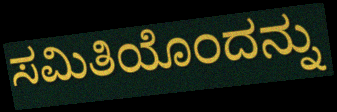
ಸಮಿತಿಯೊಂದನ್ನು